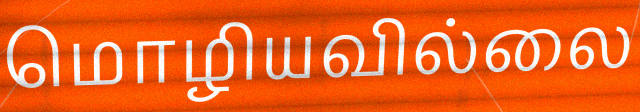
மொழியவில்லை